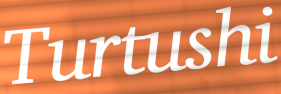
Turtushi